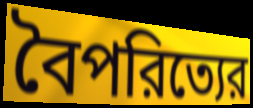
বৈপরিত্যের